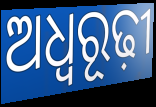
ଅଧ୍ଵରୂଢ଼ୀ